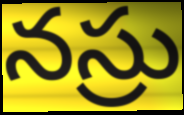
నస్రు